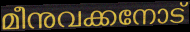
മീനുവക്കനോട്